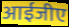
आईजीए